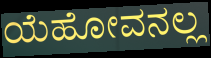
ಯೆಹೋವನಲ್ಲ